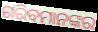
ଗରିବମାନଙ୍କର